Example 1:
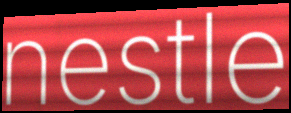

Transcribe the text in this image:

nestle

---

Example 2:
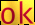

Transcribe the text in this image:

ok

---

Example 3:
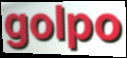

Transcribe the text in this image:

golpo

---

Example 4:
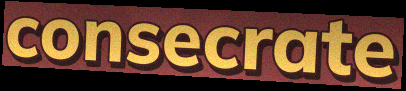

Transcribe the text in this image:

consecrate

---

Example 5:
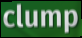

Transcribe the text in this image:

clump